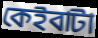
কেইবাটা